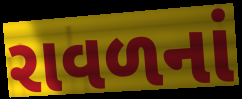
રાવળનાં